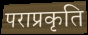
पराप्रकृति